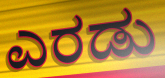
ಎರಡು